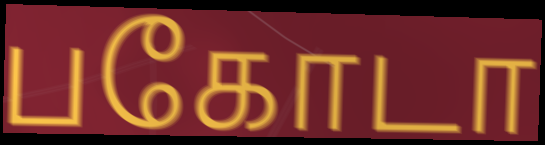
பகோடா